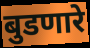
बुडणारे